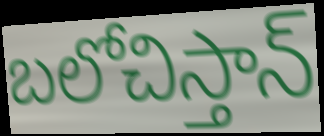
బలోచిస్తాన్